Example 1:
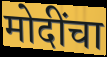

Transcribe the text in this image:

मोदींचा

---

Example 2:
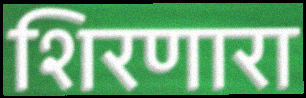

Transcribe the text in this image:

शिरणारा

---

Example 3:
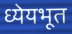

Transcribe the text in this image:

ध्येयभूत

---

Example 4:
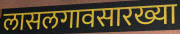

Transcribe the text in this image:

लासलगावसारख्या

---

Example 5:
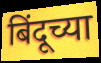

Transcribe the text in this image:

बिंदूच्या